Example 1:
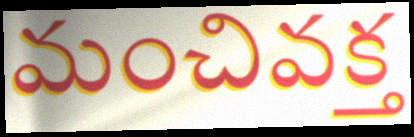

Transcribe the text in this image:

మంచివక్త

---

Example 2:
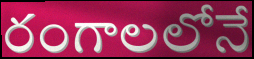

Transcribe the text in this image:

రంగాలలోనే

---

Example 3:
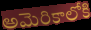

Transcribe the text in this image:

అమెరికాలోకి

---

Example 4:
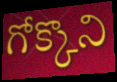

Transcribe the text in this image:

గోక్కొని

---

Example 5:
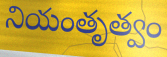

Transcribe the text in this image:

నియంతృత్వం